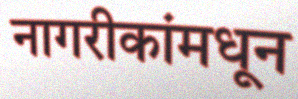
नागरीकांमधून